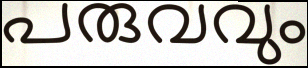
പരുവവും